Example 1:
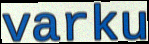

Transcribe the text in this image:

varku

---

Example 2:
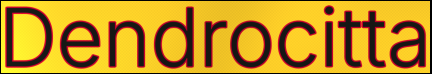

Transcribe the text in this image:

Dendrocitta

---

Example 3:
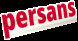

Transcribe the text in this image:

persans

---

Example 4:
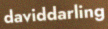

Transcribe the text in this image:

daviddarling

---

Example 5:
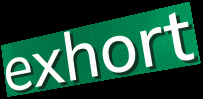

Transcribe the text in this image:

exhort